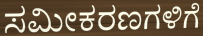
ಸಮೀಕರಣಗಳಿಗೆ